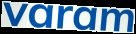
varam